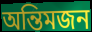
অন্তিমজন